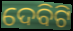
ଦେବିଟି